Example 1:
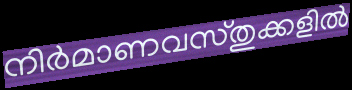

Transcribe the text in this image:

നിർമാണവസ്തുക്കളിൽ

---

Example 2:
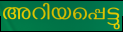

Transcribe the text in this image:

അറിയപ്പെട്ടു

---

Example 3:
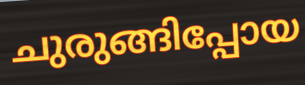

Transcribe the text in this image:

ചുരുങ്ങിപ്പോയ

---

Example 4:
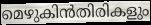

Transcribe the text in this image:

മെഴുകിൻതിരികളും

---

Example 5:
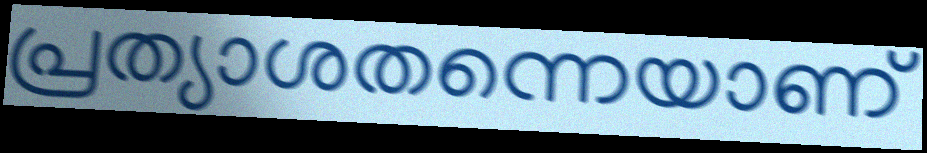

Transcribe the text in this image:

പ്രത്യാശതന്നെയാണ്